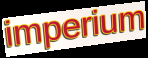
imperium